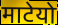
माटेयो